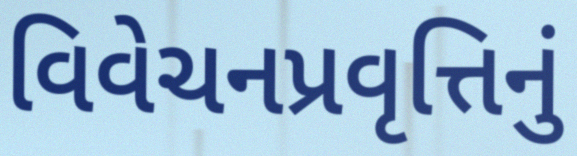
વિવેચનપ્રવૃત્તિનું